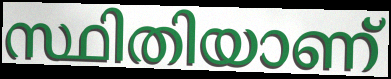
സ്ഥിതിയാണ്